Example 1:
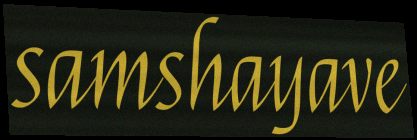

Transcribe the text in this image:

samshayave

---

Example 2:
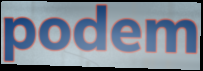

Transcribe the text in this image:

podem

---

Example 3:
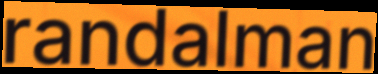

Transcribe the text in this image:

randalman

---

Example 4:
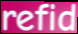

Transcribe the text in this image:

refid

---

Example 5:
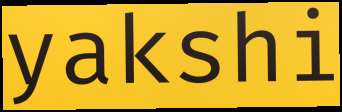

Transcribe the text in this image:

yakshi